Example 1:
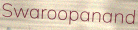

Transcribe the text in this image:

Swaroopanand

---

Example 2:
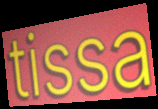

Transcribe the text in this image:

tissa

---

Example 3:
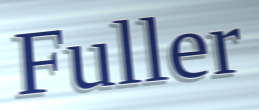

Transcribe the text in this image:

Fuller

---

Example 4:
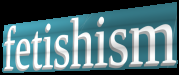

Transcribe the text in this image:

fetishism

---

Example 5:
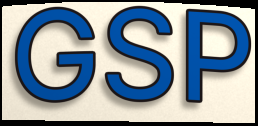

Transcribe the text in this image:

GSP